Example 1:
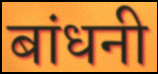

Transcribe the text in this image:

बांधनी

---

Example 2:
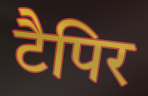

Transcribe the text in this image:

टैपिर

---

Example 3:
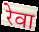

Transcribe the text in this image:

रेवा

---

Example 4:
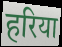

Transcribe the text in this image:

हरिया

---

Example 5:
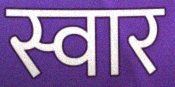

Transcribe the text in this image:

स्वार